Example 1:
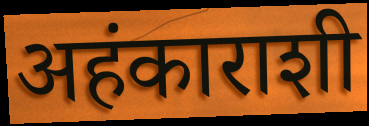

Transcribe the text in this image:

अहंकाराशी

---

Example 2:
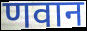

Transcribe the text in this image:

णवान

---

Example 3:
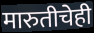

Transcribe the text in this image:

मारुतीचेही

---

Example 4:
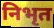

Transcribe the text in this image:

निभृत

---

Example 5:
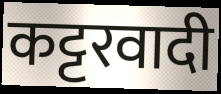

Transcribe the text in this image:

कट्टरवादी